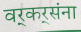
वर्कर्संना